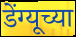
डेंग्यूच्या